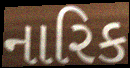
નારિક